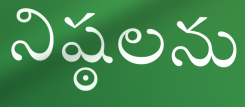
నిష్ఠలను